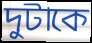
দুটাকে